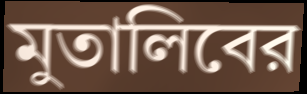
মুতালিবের